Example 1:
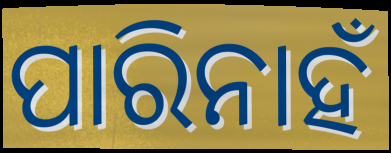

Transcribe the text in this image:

ପାରିନାହଁ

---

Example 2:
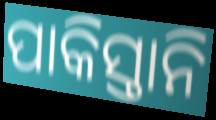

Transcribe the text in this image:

ପାକିସ୍ତାନି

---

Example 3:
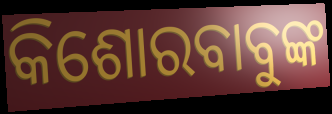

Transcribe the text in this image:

କିଶୋରବାବୁଙ୍କ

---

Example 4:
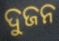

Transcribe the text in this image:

ଦୁଜନ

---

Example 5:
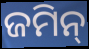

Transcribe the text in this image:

ଜମିନ୍